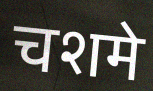
चशमे